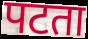
पटता